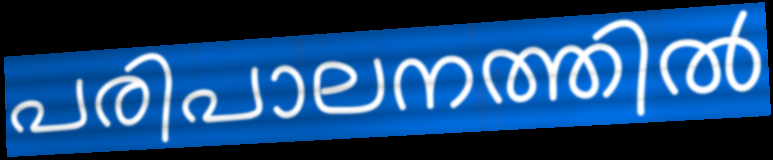
പരിപാലനത്തിൽ